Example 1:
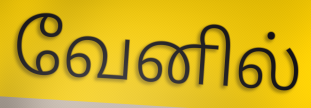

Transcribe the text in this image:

வேனில்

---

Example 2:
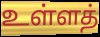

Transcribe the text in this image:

உள்ளத்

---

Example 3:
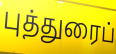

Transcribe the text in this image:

புத்துரைப்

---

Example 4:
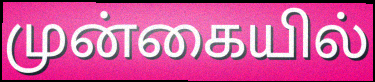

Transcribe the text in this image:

முன்கையில்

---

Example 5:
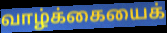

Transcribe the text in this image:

வாழ்க்கையைக்